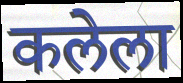
कलेला